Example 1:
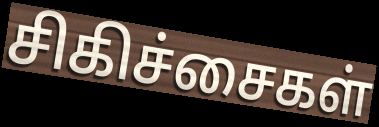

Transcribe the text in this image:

சிகிச்சைகள்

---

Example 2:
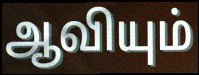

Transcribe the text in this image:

ஆவியும்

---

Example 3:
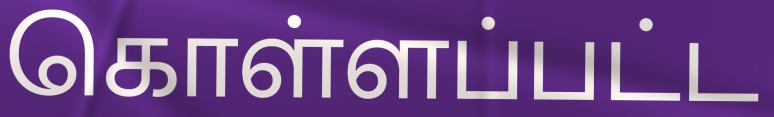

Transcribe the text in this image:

கொள்ளப்பட்ட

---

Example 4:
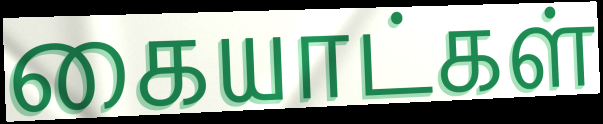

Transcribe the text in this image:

கையாட்கள்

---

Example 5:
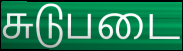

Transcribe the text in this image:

சுடுபடை